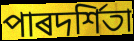
পাৰদৰ্শিতা